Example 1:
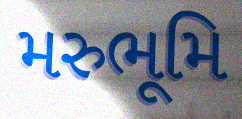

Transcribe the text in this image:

મરુભૂમિ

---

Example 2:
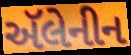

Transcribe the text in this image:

ઍલેનીન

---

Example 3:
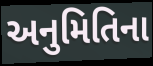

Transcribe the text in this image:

અનુમિતિના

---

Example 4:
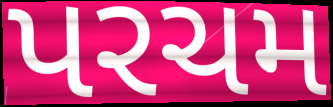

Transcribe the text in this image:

પરચમ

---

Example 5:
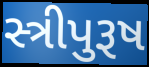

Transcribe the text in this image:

સ્ત્રીપુરૂષ